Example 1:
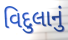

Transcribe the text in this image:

વિદુલાનું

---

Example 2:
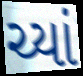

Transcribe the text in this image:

ચ્યાં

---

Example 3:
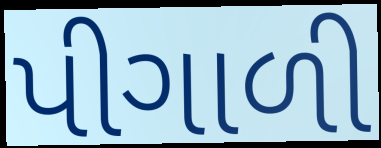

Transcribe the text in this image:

પીગાળી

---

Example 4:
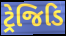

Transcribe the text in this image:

ટ્રેજિડિ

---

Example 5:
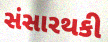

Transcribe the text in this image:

સંસારથકી